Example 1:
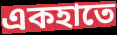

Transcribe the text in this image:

একহাতে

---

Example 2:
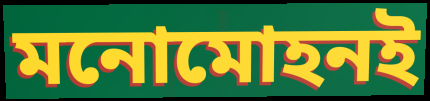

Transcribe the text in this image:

মনোমোহনই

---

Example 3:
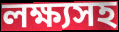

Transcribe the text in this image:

লক্ষ্যসহ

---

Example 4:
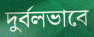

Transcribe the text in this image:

দুর্বলভাবে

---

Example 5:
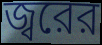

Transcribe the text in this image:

জ্বরের